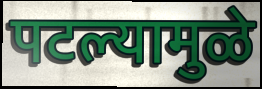
पटल्यामुळे